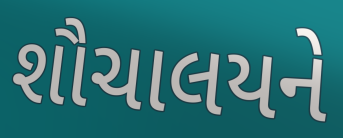
શૌચાલયને